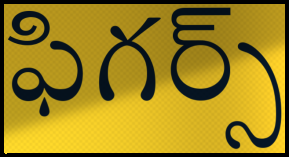
ఫిగర్స్